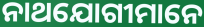
ନାଥଯୋଗୀମାନେ